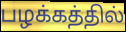
பழக்கத்தில்